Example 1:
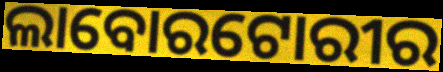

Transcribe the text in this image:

ଲାବୋରଟୋରୀର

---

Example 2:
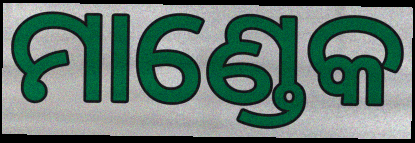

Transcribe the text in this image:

ମାଣ୍ଡେକ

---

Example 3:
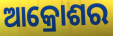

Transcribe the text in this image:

ଆକ୍ରୋଶର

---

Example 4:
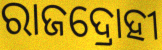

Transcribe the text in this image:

ରାଜଦ୍ରୋହୀ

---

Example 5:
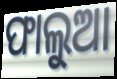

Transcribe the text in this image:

ଫାଲୁଆ